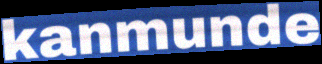
kanmunde